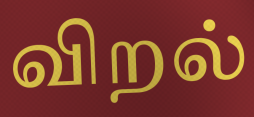
விறல்